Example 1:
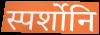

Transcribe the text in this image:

स्पर्शोनि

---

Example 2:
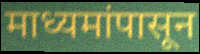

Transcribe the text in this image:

माध्यमांपासून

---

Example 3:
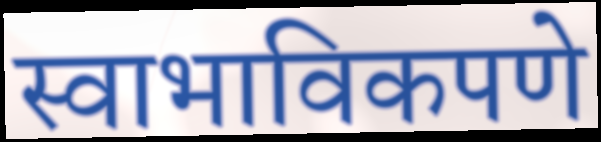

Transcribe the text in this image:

स्वाभाविकपणे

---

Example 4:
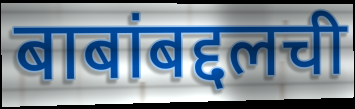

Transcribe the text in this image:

बाबांबद्दलची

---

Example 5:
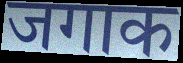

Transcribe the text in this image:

जगाक